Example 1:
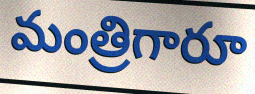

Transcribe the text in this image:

మంత్రిగారూ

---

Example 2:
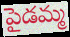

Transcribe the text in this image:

పైడమ్మ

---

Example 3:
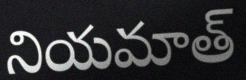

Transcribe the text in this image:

నియమాత్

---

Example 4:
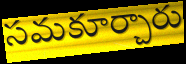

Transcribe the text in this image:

సమకూర్చారు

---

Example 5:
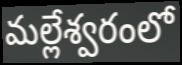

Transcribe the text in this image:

మల్లేశ్వరంలో